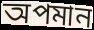
অপমান